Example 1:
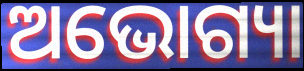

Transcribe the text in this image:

ଅଭୋଗ୍ୟା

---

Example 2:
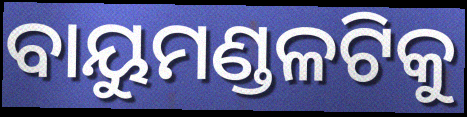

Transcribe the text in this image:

ବାୟୁମଣ୍ଡଳଟିକୁ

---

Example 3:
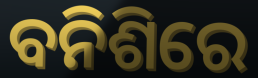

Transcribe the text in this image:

ବନିଶିରେ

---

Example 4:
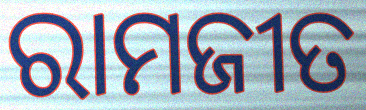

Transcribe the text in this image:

ରାମଜୀତ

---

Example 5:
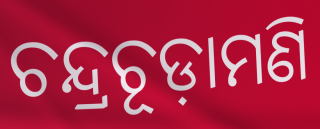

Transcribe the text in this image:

ଚନ୍ଦ୍ରଚୂଡ଼ାମଣି